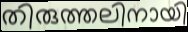
തിരുത്തലിനായി